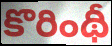
కొరింథీ